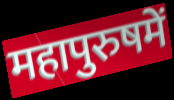
महापुरुषमें